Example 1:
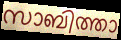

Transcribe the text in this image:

സാബിത്താ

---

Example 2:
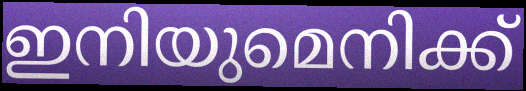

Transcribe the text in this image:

ഇനിയുമെനിക്ക്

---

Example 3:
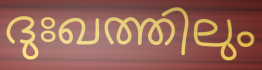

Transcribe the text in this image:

ദുഃഖത്തിലും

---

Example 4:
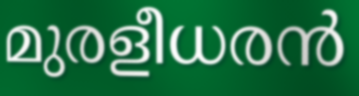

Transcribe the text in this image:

മുരളീധരൻ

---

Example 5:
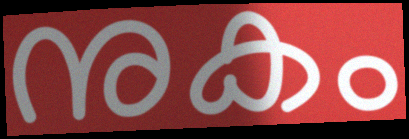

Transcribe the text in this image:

നുകം